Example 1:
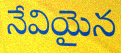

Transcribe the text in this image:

నేవియైన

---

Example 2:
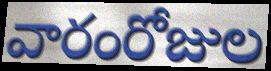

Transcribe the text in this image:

వారంరోజుల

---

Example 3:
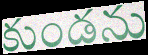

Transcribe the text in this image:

కుండను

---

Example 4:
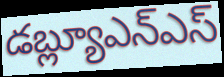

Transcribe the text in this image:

డబ్ల్యూఎన్ఎస్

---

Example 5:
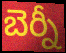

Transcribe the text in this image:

బెర్నీ